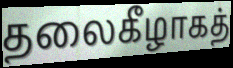
தலைகீழாகத்